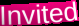
Invited